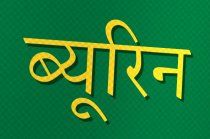
ब्यूरिन